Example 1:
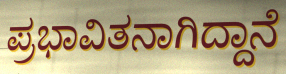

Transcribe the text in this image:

ಪ್ರಭಾವಿತನಾಗಿದ್ದಾನೆ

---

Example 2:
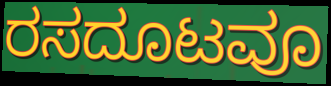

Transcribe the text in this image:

ರಸದೂಟವೂ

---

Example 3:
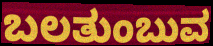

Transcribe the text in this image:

ಬಲತುಂಬುವ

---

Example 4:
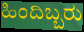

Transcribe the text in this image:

ಹಿಂದಿಬ್ಬರು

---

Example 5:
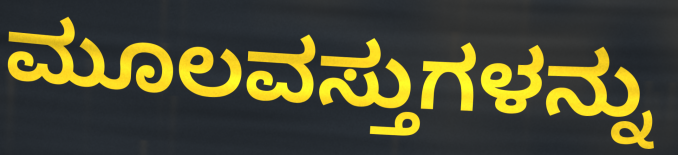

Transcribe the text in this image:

ಮೂಲವಸ್ತುಗಳನ್ನು